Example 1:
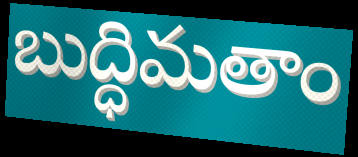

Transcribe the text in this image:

బుద్ధిమతాం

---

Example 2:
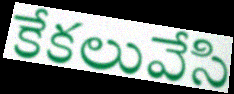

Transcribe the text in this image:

కేకలువేసి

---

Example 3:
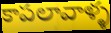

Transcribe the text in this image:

కాపలావాళ్ళ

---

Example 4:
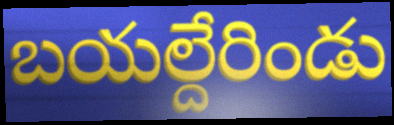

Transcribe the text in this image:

బయల్దేరిండు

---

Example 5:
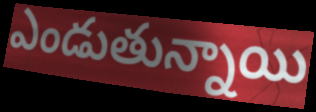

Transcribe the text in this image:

ఎండుతున్నాయి